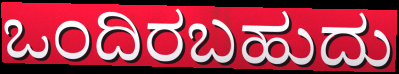
ಒಂದಿರಬಹುದು